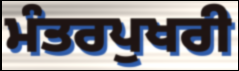
ਮੰਤਰਪੁਖਰੀ